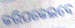
କରିପକେଇବେ